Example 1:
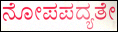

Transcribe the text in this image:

ನೋಪಪದ್ಯತೇ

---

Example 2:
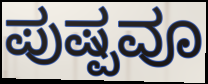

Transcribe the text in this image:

ಪುಷ್ಪವೂ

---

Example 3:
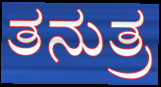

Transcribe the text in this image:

ತನುತ್ರ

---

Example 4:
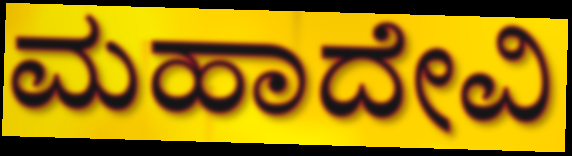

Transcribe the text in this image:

ಮಹಾದೇವಿ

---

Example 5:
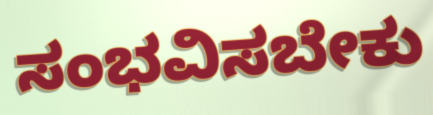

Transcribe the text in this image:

ಸಂಭವಿಸಬೇಕು